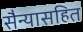
सैन्यासहित